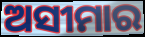
ଅସୀମାର